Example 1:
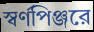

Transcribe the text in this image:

স্বর্ণপিঞ্জরে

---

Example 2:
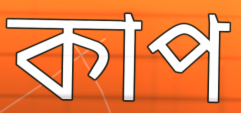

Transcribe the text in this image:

কাপ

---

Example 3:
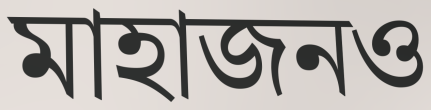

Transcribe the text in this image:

মাহাজনও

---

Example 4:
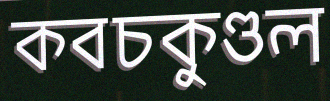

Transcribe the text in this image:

কবচকুণ্ডল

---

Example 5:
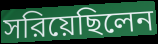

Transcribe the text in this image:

সরিয়েছিলেন